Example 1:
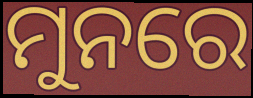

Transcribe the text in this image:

ମୁନରେ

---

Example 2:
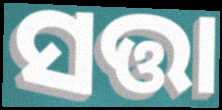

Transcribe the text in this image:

ସତ୍ତା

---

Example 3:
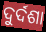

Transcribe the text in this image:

ଦୁର୍ଦଶା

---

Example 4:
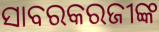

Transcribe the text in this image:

ସାବରକରଜୀଙ୍କ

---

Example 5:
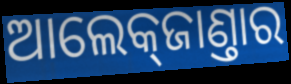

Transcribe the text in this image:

ଆଲେକ୍‌ଜାଣ୍ତାର